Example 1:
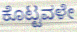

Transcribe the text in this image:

ಕೊಟ್ಟವಳೇ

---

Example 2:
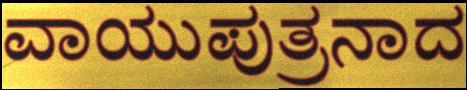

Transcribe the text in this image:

ವಾಯುಪುತ್ರನಾದ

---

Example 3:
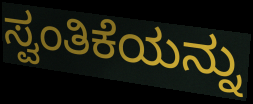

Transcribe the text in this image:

ಸ್ವಂತಿಕೆಯನ್ನು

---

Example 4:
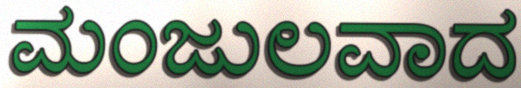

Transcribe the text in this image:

ಮಂಜುಲವಾದ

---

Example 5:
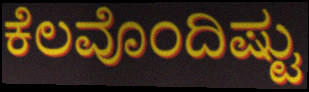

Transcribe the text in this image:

ಕೆಲವೊಂದಿಷ್ಟು